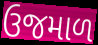
ઉજમાળ